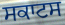
ਸਕਾਟਸ